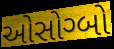
ઓસોગ્બો